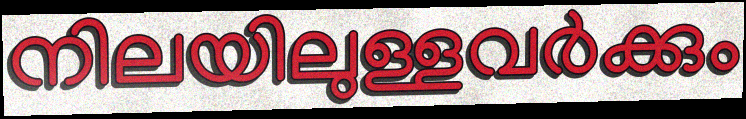
നിലയിലുള്ളവർക്കും